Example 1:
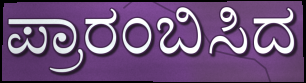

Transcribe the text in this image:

ಪ್ರಾರಂಬಿಸಿದ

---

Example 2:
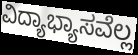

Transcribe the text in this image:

ವಿದ್ಯಾಭ್ಯಾಸವೆಲ್ಲ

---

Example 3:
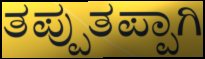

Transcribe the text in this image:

ತಪ್ಪುತಪ್ಪಾಗಿ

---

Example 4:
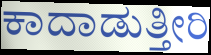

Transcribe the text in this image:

ಕಾದಾಡುತ್ತೀರಿ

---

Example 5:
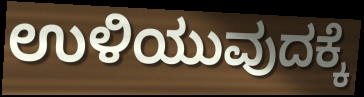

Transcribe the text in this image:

ಉಳಿಯುವುದಕ್ಕೆ